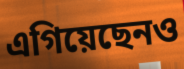
এগিয়েছেনও